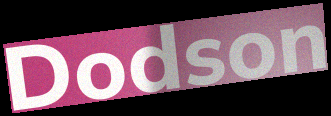
Dodson